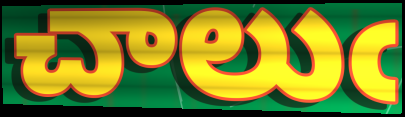
చాలుఁ